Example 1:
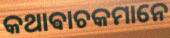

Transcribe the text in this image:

କଥାଵାଚକମାନେ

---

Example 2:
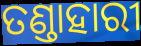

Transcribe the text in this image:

ତଣ୍ଡାହାରୀ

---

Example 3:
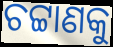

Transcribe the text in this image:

ଚଟ୍ଟାଣକୁ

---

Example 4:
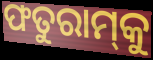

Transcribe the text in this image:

ଫତୁରାମ୍‌କୁ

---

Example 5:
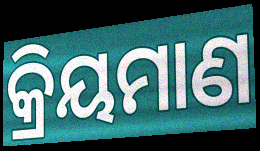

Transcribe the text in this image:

କ୍ରିୟମାଣ